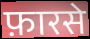
फ़ारसे